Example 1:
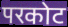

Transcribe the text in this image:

परकोट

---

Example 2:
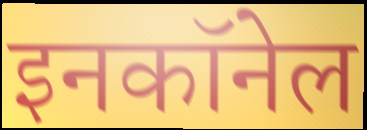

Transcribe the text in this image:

इनकॉनेल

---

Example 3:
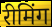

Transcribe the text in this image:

रीमिंग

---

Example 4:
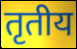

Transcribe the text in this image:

तृतीय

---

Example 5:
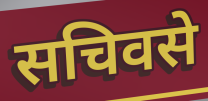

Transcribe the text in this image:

सचिवसे